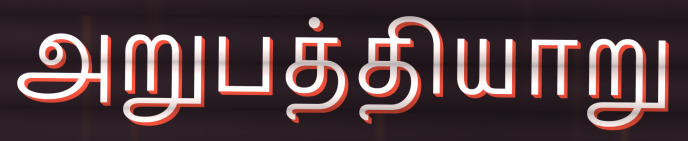
அறுபத்தியாறு